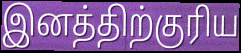
இனத்திற்குரிய